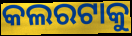
କଲରଟାକୁ